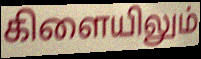
கிளையிலும்